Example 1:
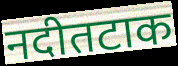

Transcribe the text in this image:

नदीतटाक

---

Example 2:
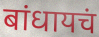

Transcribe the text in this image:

बांधायचं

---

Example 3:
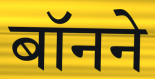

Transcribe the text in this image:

बॉनने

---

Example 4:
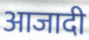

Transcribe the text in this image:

आजादी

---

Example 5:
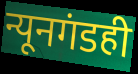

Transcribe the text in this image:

न्यूनगंडही